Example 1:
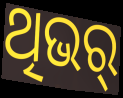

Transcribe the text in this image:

ଥିଭର୍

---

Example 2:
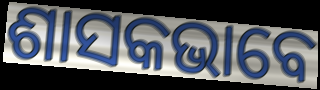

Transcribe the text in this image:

ଶାସକଭାବେ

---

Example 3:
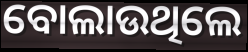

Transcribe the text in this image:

ବୋଲାଉଥିଲେ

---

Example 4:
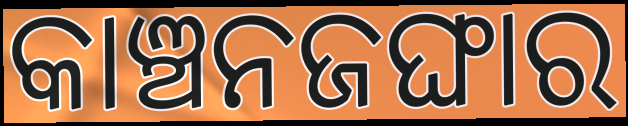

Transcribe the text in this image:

କାଞ୍ଚନଜଙ୍ଘାର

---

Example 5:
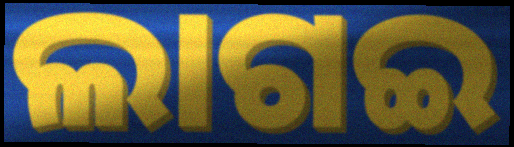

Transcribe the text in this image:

ଲାଗଇ